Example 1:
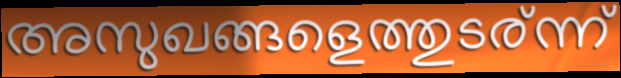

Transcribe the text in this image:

അസുഖങ്ങളെത്തുടര്ന്ന്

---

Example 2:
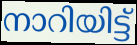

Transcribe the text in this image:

നാറിയിട്ട്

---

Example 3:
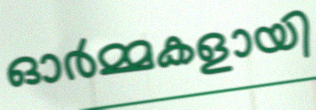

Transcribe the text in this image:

ഓർമ്മകളായി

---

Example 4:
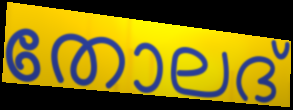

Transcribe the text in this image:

തോലദ്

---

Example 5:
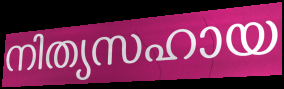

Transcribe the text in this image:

നിത്യസഹായ